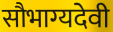
सौभाग्यदेवी